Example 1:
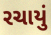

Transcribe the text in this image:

રચાયું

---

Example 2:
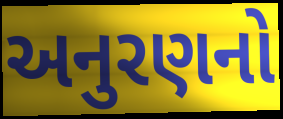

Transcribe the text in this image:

અનુરણનો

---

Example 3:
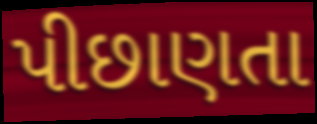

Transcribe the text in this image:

પીછાણતા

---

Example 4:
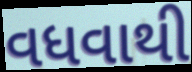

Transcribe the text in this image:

વધવાથી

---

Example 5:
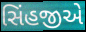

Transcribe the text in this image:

સિંહજીએ